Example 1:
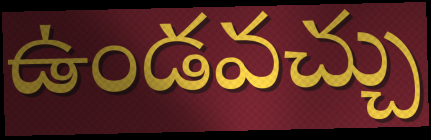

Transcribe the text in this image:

ఉండవచ్చు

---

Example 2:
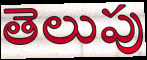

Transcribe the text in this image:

తెలుపు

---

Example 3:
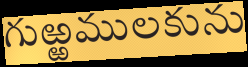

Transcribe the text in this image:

గుఱ్ఱములకును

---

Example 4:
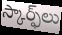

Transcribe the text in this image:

స్కార్ఫ్‌లు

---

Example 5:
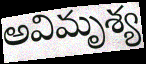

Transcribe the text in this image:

అవిమృశ్య